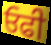
ਓਫੀ